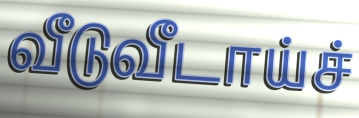
வீடுவீடாய்ச்